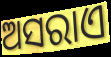
ଅସରାଏ